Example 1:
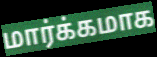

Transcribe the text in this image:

மார்க்கமாக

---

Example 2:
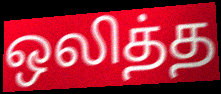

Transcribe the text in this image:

ஒலித்த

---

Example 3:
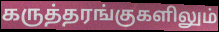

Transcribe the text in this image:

கருத்தரங்குகளிலும்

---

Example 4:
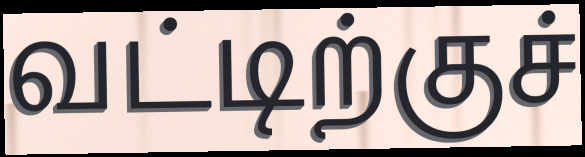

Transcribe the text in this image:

வட்டிற்குச்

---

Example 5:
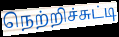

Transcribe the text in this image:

நெற்றிச்சுட்டி